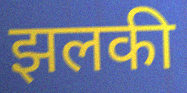
झलकी